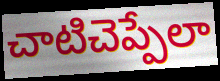
చాటిచెప్పేలా